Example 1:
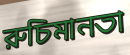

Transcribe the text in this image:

রুচিমানতা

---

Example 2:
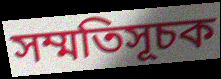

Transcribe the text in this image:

সম্মতিসূচক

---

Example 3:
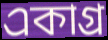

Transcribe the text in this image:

একাগ্র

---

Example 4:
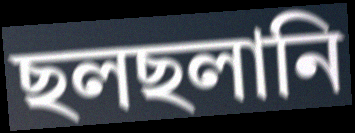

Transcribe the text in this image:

ছলছলানি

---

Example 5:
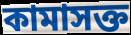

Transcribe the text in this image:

কামাসক্ত